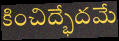
కించిద్భేదమే